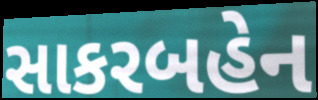
સાકરબહેન